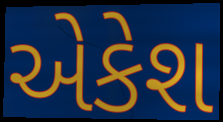
એકેશ